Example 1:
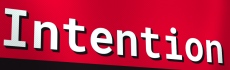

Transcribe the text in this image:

Intention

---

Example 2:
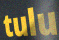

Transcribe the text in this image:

tulu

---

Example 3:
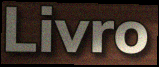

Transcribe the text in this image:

Livro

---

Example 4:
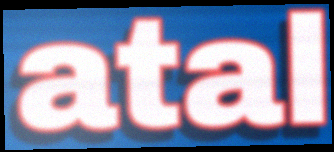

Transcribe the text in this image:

atal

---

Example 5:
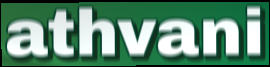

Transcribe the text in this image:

athvani